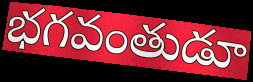
భగవంతుడూ